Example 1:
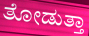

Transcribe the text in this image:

ತೋಡುತ್ತಾ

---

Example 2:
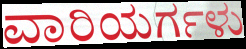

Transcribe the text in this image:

ವಾರಿಯರ್ಗಳು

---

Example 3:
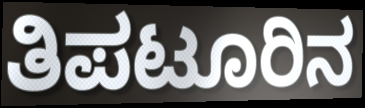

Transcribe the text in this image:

ತಿಪಟೂರಿನ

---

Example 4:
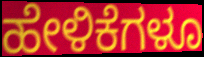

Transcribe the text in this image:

ಹೇಳಿಕೆಗಳೂ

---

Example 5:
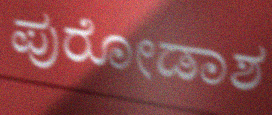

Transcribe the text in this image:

ಪುರೋಡಾಶ